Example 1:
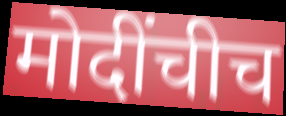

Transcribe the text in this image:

मोदींचीच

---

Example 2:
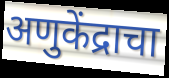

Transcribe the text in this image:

अणुकेंद्राचा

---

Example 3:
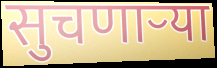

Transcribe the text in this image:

सुचणाऱ्या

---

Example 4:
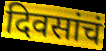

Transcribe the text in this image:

दिवसांचं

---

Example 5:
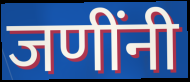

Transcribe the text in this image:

जणींनी